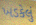
ખડકેલું